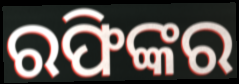
ରଫିଙ୍କର